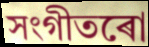
সংগীতৰো